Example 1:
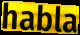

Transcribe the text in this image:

habla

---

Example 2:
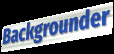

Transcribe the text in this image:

Backgrounder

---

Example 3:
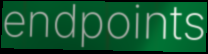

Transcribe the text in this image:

endpoints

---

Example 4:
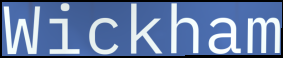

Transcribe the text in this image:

Wickham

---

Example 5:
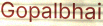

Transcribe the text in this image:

Gopalbhai